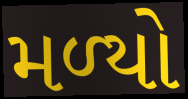
મળ્‍યો